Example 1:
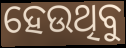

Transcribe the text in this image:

ହେଉଥିବୁ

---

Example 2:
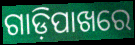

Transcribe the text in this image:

ଗାଡ଼ିପାଖରେ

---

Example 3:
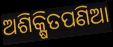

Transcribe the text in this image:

ଅଶିକ୍ଷିତପଣିଆ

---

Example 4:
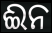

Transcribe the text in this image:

ଈନ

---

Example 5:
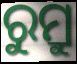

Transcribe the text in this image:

ରୁମ୍ରୁ